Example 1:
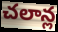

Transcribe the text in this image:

చలాన్ల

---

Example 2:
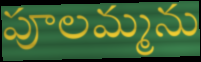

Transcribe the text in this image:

పూలమ్మను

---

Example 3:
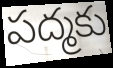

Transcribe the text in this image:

పద్మకు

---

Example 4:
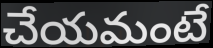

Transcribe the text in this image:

చేయమంటే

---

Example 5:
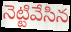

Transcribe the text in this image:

నెట్టివేసిన